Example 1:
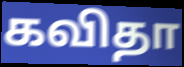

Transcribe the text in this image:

கவிதா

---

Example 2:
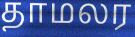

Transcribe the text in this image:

தாமலர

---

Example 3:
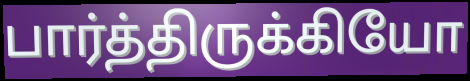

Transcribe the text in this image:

பார்த்திருக்கியோ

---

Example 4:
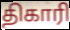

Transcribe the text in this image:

திகாரி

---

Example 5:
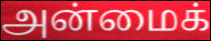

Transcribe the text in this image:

அன்மைக்